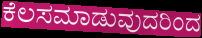
ಕೆಲಸಮಾಡುವುದರಿಂದ